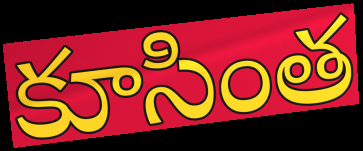
కూసింత